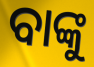
ବାଙ୍କୁ